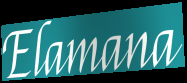
Elamana